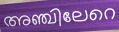
അഞ്ചിലേറെ